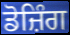
ਡੋਜ਼ਿੰਗ